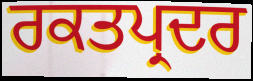
ਰਕਤਪ੍ਰਦਰ